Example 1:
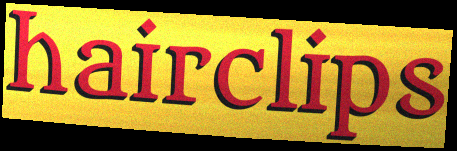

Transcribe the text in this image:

hairclips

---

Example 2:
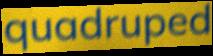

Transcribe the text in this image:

quadruped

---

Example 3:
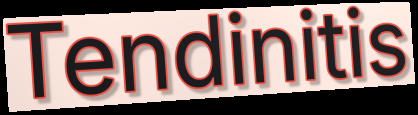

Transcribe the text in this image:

Tendinitis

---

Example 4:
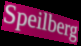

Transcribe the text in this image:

Speilberg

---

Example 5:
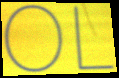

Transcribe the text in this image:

OL